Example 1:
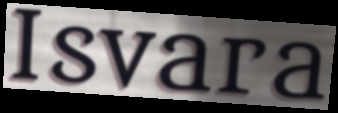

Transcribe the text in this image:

Isvara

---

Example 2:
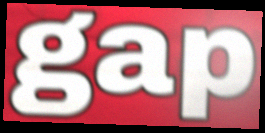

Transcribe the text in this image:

gap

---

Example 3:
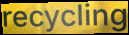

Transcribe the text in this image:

recycling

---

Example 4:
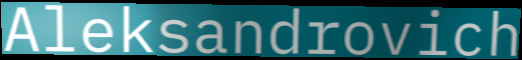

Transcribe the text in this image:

Aleksandrovich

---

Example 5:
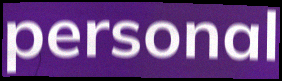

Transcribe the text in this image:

personal